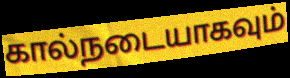
கால்நடையாகவும்